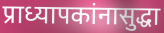
प्राध्यापकांनासुद्धा